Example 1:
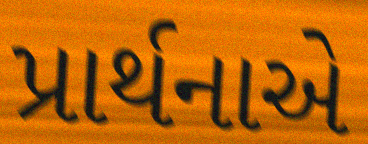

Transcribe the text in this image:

પ્રાર્થનાએ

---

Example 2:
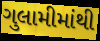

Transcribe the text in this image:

ગુલામીમાંથી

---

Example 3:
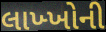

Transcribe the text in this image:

લાખ્ખોની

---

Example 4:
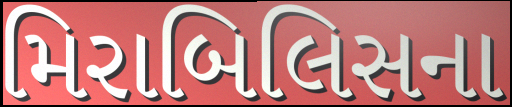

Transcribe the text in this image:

મિરાબિલિસના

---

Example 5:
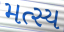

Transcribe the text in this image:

મત્સ્ય